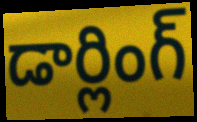
డార్లింగ్